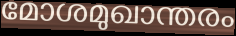
മോശമുഖാന്തരം